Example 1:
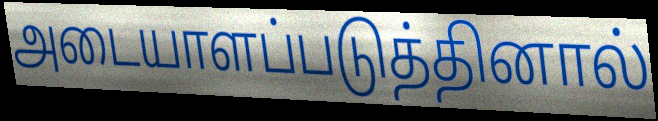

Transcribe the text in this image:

அடையாளப்படுத்தினால்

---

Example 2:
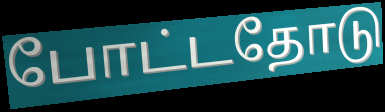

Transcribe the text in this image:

போட்டதோடு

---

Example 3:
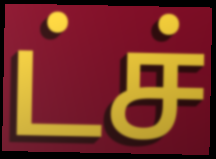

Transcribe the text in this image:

ட்ச்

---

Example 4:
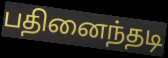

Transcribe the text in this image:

பதினைந்தடி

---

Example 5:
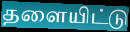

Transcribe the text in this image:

தளையிட்டு